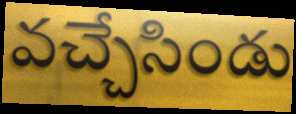
వచ్చేసిండు